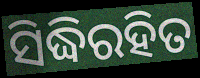
ସିଦ୍ଧିରହିତ